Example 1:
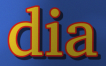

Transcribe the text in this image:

dia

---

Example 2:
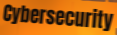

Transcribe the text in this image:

Cybersecurity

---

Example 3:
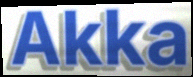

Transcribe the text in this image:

Akka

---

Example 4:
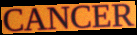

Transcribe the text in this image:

CANCER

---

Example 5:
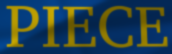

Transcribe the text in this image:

PIECE